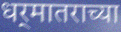
धर्मातराच्या